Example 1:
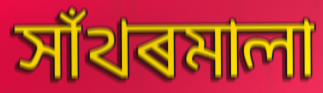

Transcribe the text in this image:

সাঁথৰমালা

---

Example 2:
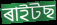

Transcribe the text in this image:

ৰাইটছ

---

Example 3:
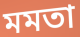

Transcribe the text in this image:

মমতা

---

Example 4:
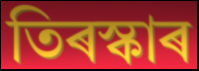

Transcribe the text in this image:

তিৰস্কাৰ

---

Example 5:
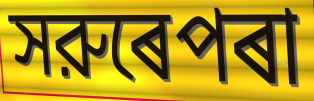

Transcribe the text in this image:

সৰুৰেপৰা